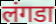
लंगडा